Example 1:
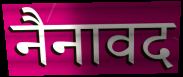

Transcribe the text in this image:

नैनावद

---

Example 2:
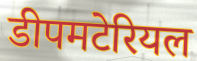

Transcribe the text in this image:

डीपमटेरियल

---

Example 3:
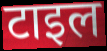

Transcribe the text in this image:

टाइल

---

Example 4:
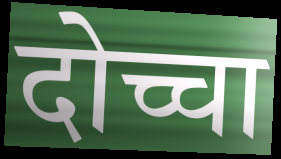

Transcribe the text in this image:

दोच्चा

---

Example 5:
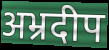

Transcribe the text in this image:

अभ्रदीप